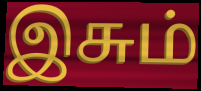
இசும்